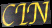
CIN